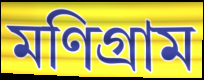
মণিগ্রাম